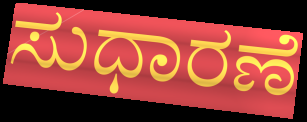
ಸುಧಾರಣೆ